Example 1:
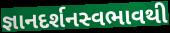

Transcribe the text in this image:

જ્ઞાનદર્શનસ્વભાવથી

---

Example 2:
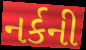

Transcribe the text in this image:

નર્કની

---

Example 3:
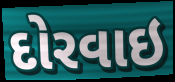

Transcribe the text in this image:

દોરવાઇ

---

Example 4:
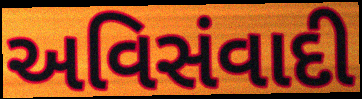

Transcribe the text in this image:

અવિસંવાદી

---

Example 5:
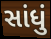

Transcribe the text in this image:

સાંધું